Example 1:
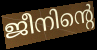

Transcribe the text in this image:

ജീനിന്റെ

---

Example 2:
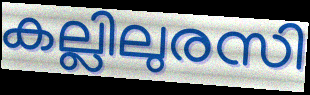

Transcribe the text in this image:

കല്ലിലുരസി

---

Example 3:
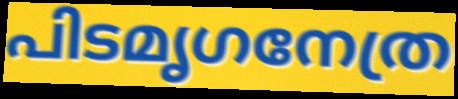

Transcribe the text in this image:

പിടമൃഗനേത്ര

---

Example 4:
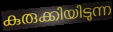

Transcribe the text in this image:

കുരുക്കിയിടുന്ന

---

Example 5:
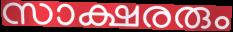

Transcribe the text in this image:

സാക്ഷരരും